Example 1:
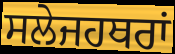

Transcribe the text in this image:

ਸਲੇਜਹਥਰਾਂ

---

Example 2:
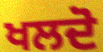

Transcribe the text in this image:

ਖਲਦੋ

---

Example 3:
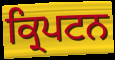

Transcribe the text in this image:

ਕ੍ਰਿਪਟਨ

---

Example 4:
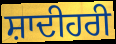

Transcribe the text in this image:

ਸ਼ਾਦੀਹਰੀ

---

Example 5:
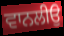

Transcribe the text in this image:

ਵਾਨਲੀਉ